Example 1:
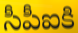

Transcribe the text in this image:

సీపీఐకి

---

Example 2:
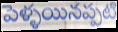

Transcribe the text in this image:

పెళ్ళయినప్పటి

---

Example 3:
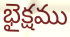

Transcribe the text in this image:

భైక్షము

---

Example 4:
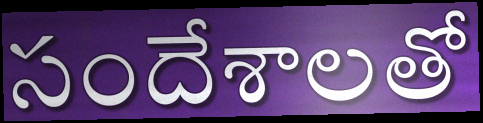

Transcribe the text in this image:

సందేశాలతో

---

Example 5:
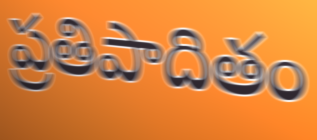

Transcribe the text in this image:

ప్రతిపాదితం